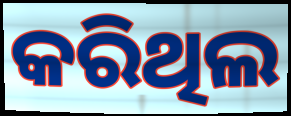
କରିଥିଲ